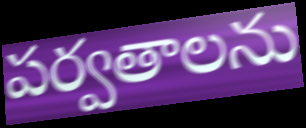
పర్వతాలను